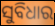
ସୁବିଧାର